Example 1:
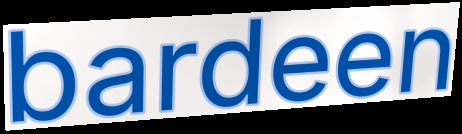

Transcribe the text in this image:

bardeen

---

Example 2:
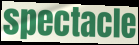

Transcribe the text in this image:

spectacle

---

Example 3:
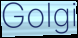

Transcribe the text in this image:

Golgi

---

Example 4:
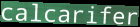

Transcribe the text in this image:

calcarifer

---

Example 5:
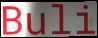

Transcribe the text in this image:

Buli